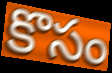
కొసం